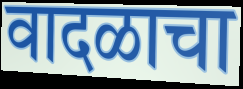
वादळाचा